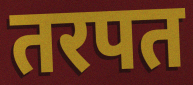
तरपत